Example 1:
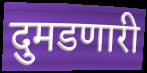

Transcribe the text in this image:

दुमडणारी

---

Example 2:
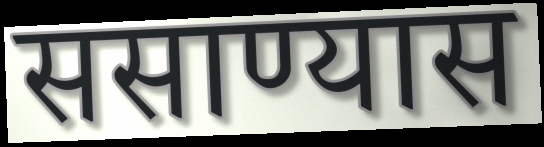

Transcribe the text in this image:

ससाण्यास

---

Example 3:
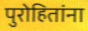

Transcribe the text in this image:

पुरोहितांना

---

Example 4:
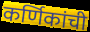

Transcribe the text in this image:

कर्णिकांची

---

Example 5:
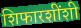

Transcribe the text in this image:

शिफारशींशी